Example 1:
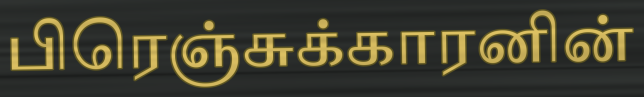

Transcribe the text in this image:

பிரெஞ்சுக்காரனின்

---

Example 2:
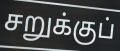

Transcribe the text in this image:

சறுக்குப்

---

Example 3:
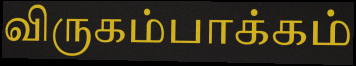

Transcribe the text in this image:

விருகம்பாக்கம்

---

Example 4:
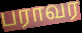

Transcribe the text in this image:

பராவர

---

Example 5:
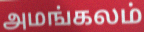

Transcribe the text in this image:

அமங்கலம்